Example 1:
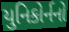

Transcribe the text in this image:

યુનિકોર્નનો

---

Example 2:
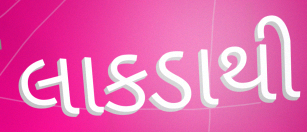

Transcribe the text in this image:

લાકડાથી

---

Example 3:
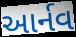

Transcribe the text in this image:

આર્નવ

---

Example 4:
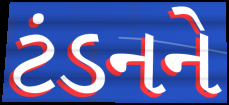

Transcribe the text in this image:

ટંડનને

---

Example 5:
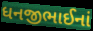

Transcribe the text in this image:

ધનજીભાઈનાં